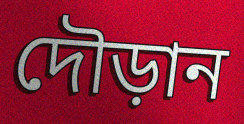
দৌড়ান